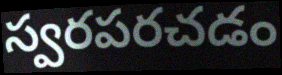
స్వరపరచడం